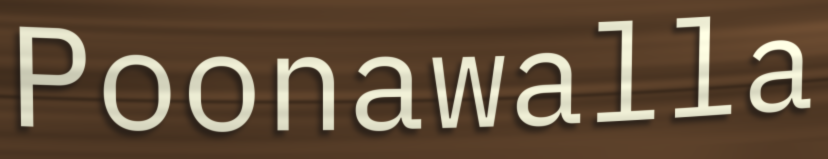
Poonawalla